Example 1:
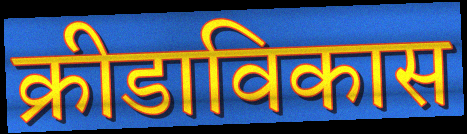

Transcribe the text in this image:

क्रीडाविकास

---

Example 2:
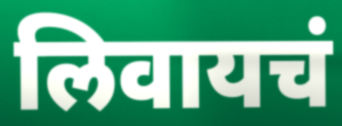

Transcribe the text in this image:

लिवायचं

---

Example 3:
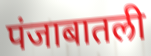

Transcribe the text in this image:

पंजाबातली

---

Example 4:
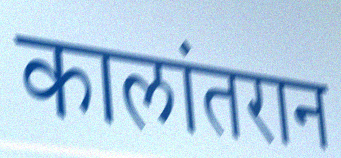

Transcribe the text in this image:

कालांतरान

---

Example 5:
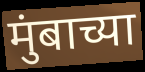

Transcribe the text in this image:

मुंबाच्या